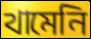
থামেনি